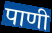
पाणी